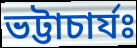
ভট্টাচাৰ্যঃ